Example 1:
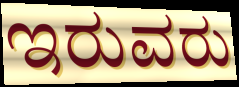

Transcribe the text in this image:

ಇರುವರು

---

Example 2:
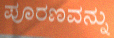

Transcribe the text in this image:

ಪೂರಣವನ್ನು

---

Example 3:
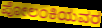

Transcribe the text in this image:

ಪೋಲಂಕಿಯವರ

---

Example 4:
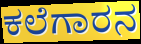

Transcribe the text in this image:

ಕಲೆಗಾರನ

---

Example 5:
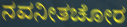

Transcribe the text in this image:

ನವನೀತಚೋರ